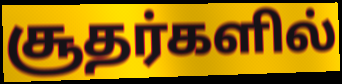
சூதர்களில்